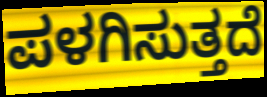
ಪಳಗಿಸುತ್ತದೆ